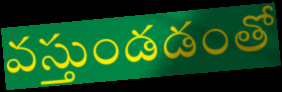
వస్తుండడంతో